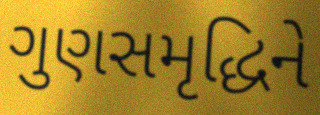
ગુણસમૃદ્ધિને